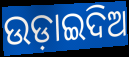
ଉଡ଼ାଇଦିଅ